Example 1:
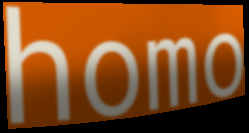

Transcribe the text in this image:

homo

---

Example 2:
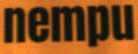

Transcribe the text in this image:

nempu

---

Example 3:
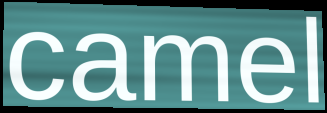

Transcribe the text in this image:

camel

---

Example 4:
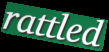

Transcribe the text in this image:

rattled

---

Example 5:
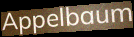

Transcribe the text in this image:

Appelbaum